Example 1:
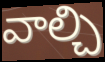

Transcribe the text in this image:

వాల్చి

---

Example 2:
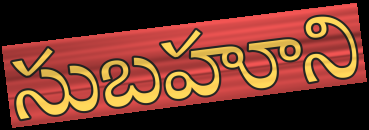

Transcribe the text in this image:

సుబహూని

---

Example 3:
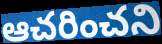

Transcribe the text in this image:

ఆచరించని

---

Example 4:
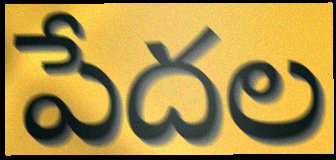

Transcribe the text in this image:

పేదల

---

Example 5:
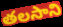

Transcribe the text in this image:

తలసాని